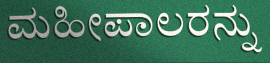
ಮಹೀಪಾಲರನ್ನು